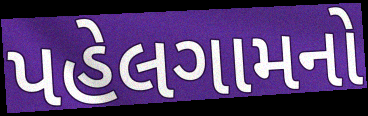
પહેલગામનો